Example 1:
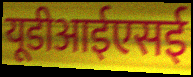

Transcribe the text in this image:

यूडीआईएसई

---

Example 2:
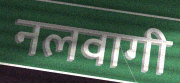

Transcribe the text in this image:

नलवागी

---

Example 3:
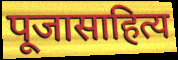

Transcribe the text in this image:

पूजासाहित्य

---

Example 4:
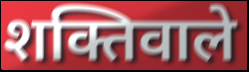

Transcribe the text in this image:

शक्तिवाले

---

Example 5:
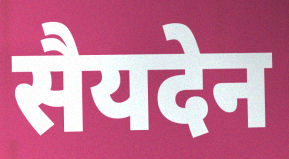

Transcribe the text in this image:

सैयदेन